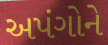
અપંગોને